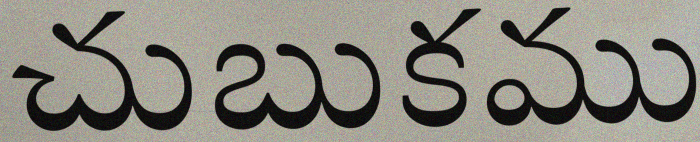
చుబుకము